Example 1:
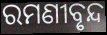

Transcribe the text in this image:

ରମଣୀବୃନ୍ଦ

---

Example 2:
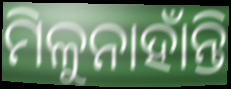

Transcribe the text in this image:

ମିଳୁନାହାଁନ୍ତି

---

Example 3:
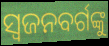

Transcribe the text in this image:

ସ୍ଵଜନବର୍ଗଙ୍କୁ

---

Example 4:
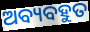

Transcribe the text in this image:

ଅବ୍ୟବହୁତ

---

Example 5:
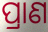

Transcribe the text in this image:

ପ୍ରାଣ